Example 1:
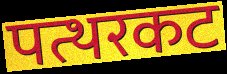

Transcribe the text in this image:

पत्थरकट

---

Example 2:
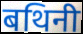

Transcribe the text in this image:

बथिनी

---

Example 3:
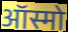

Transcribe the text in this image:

ऑस्मो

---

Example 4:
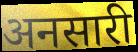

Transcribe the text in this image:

अनसारी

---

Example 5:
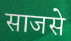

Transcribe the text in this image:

साजसे